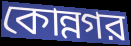
কোন্নগর